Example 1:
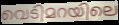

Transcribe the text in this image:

വെടിമറയിലെ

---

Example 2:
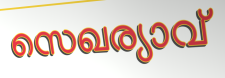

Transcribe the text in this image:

സെഖര്യാവ്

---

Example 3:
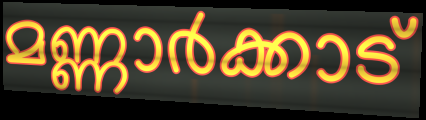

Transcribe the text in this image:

മണ്ണാർക്കാട്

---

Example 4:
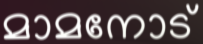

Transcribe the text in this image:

മാമനോട്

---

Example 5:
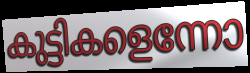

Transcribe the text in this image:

കുട്ടികളെന്നോ